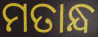
ମତାନ୍ଧ